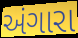
અંગારા